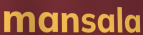
mansala